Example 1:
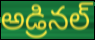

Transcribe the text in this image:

అడ్రినల్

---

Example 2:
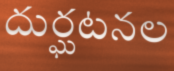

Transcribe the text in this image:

దుర్ఘటనల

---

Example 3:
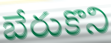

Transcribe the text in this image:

బేరుకొని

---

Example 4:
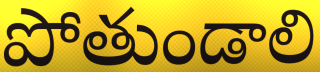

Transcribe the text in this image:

పోతుండాలి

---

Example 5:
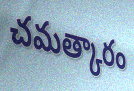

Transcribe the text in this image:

చమత్కారం